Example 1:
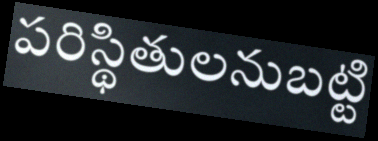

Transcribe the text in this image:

పరిస్థితులనుబట్టి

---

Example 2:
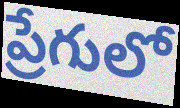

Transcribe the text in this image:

ప్రేగులో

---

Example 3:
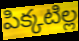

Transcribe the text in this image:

పిక్కటిల్ల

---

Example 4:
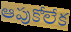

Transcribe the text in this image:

ఆపుకోలేక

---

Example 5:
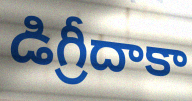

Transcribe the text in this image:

డిగ్రీదాకా